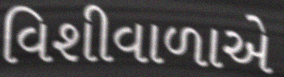
વિશીવાળાએ